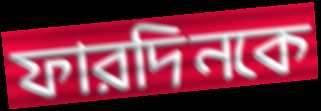
ফারদিনকে